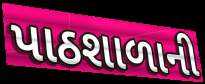
પાઠશાળાની